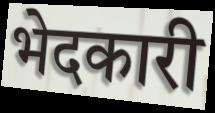
भेदकारी